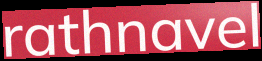
rathnavel